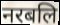
नरबलि